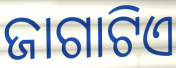
ଜାଗାଟିଏ